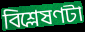
বিশ্লেষণটা